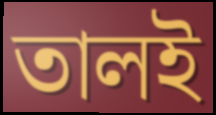
তালই